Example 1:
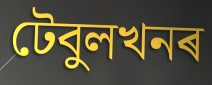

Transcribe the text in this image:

টেবুলখনৰ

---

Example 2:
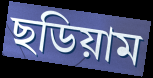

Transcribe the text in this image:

ছডিয়াম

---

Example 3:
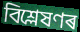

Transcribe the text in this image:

বিশ্লেষণৰ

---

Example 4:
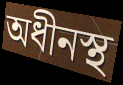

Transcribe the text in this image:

অধীনস্থ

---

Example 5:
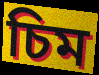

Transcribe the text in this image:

চিম